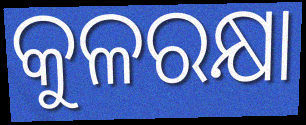
କୁଳରକ୍ଷା